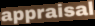
appraisal